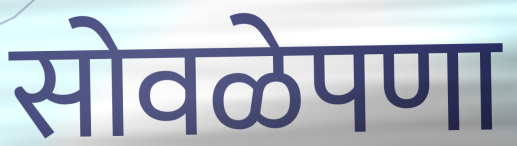
सोवळेपणा